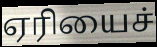
ஏரியைச்